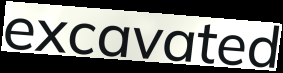
excavated